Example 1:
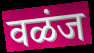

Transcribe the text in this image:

वळंज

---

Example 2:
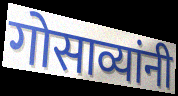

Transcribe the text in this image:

गोसाव्यांनी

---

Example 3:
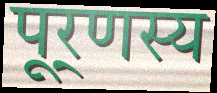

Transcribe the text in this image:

पूर्णस्य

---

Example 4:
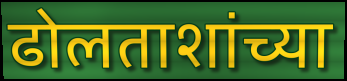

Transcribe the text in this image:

ढोलताशांच्या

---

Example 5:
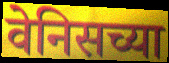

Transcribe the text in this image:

वेनिसच्या